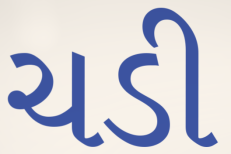
ચડી